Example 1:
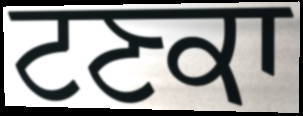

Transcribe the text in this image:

ਟਣਕਾ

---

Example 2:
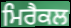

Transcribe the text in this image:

ਮਿਰੈਕਲ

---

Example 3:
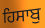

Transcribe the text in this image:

ਹਿਸਾਬੁ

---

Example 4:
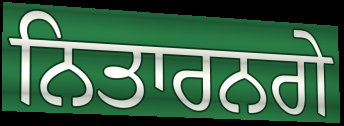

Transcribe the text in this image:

ਨਿਤਾਰਨਗੇ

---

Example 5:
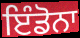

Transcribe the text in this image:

ਇੰਡੋਨਾ